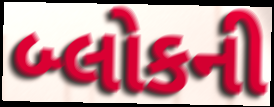
બ્લોકની